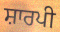
ਸ਼ਾਰਪੀ